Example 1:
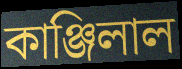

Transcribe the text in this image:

কাঞ্জিলাল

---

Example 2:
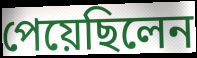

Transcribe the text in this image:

পেয়েছিলেন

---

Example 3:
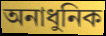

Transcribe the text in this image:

অনাধুনিক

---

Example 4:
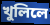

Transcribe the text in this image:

খুলিলে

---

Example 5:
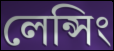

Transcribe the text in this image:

লেন্সিং